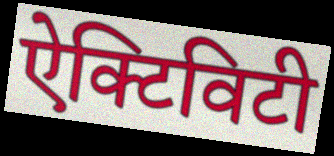
ऐक्टिविटी